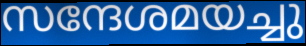
സന്ദേശമയച്ചു